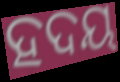
ହଦୟ